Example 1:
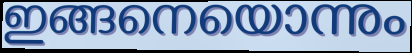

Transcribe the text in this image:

ഇങ്ങനെയൊന്നും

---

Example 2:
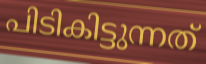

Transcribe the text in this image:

പിടികിട്ടുന്നത്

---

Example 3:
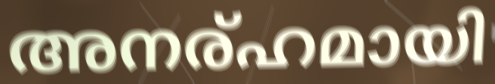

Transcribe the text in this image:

അനര്ഹമായി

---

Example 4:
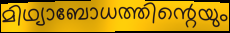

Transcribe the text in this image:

മിഥ്യാബോധത്തിന്റെയും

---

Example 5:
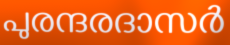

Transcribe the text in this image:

പുരന്ദരദാസർ